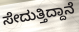
ಸೇದುತ್ತಿದ್ದಾನೆ